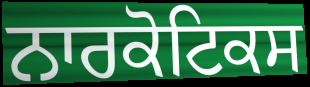
ਨਾਰਕੋਟਿਕਸ